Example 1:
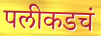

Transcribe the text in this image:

पलीकडचं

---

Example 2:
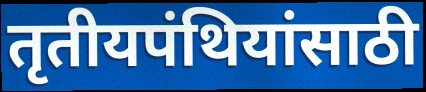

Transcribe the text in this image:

तृतीयपंथियांसाठी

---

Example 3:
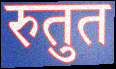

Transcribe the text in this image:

रुतुत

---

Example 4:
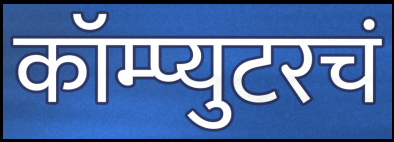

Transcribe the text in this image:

कॉम्प्युटरचं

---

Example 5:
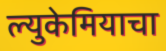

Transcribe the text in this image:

ल्युकेमियाचा